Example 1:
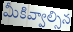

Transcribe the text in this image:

మీకివ్వాల్సిన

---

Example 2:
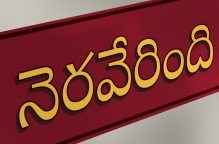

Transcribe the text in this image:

నెరవేరింది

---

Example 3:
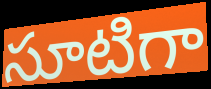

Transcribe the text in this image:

సూటిగా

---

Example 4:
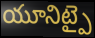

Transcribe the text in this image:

యూనిట్పై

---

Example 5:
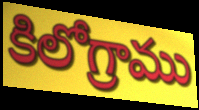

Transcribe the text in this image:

కిలోగ్రాము